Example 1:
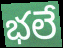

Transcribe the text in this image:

భలే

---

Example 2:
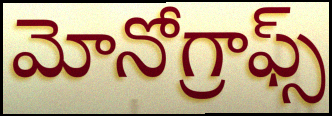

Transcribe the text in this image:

మోనోగ్రాఫ్స్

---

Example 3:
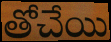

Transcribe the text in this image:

తోచేయి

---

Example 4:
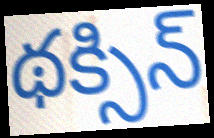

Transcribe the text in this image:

థక్సిన్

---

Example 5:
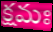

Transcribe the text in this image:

క్షమః